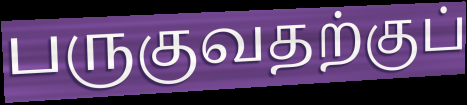
பருகுவதற்குப்